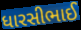
ધારસીભાઈ